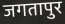
जगतापुर